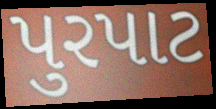
પુરપાટ